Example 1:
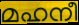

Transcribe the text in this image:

മഹനീ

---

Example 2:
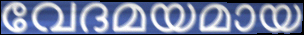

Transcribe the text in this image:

വേദമയമായ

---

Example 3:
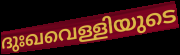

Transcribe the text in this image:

ദുഃഖവെള്ളിയുടെ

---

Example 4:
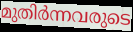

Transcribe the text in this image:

മുതിർന്നവരുടെ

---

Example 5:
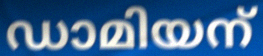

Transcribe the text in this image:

ഡാമിയന്